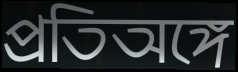
প্রতিঅঙ্গে